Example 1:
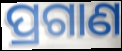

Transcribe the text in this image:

ପ୍ରଗାଣ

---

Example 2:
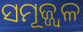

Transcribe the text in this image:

ସମୂଜ୍ଜ୍ୱଳ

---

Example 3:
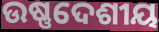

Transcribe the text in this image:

ଉଷ୍ଣଦେଶୀୟ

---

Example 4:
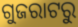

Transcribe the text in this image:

ଗୁଜରାଟରୁ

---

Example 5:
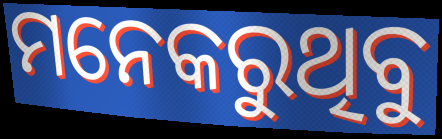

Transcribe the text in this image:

ମନେକରୁଥିବୁ